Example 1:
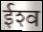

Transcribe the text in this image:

ईश्व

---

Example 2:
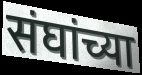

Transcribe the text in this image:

संघांच्या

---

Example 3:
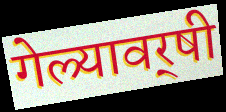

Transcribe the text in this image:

गेल्यावर्षी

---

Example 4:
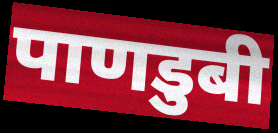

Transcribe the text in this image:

पाणडुबी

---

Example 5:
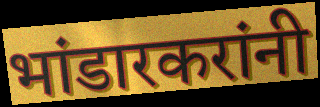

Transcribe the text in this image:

भांडारकरांनी